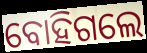
ବୋହିଗଲେ